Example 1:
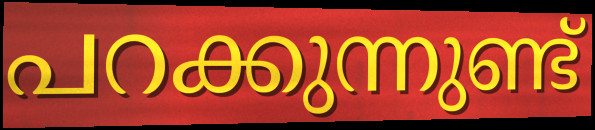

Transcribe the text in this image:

പറക്കുന്നുണ്ട്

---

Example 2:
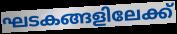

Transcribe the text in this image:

ഘടകങ്ങളിലേക്ക്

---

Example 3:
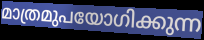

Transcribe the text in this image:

മാത്രമുപയോഗിക്കുന്ന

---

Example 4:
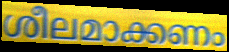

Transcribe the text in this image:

ശീലമാക്കണം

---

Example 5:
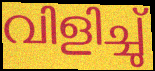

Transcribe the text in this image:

വിളിച്ചു്